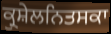
ਕ੍ਰੁਸ਼ੇਲਨਿਤਸਕਾ